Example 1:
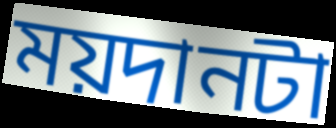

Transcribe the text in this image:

ময়দানটা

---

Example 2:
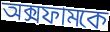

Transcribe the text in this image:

অক্সফামকে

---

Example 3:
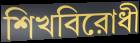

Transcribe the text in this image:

শিখবিরোধী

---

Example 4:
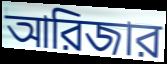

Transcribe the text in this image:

আরিজার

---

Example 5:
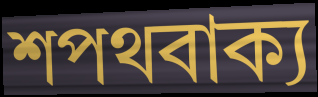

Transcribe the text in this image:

শপথবাক্য